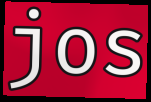
jos